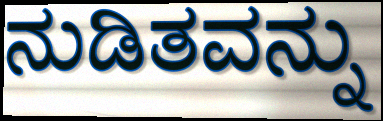
ನುಡಿತವನ್ನು